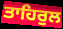
ਤਾਹਿਰੁਲ